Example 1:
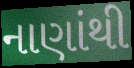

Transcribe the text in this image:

નાણાંથી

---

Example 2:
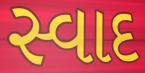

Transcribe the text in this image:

સ્વાદ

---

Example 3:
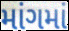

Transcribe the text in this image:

માંગમાં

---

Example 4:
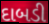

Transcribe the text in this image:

દાબડી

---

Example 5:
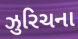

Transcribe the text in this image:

ઝુરિચના